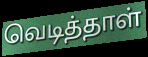
வெடித்தாள்